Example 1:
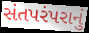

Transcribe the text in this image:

સંતપરંપરાનું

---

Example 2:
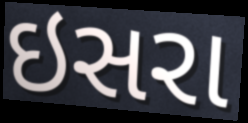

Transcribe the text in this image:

ઇસરા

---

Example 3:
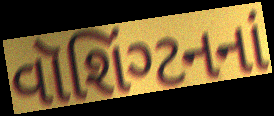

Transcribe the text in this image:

વૉશિંગ્ટનનાં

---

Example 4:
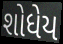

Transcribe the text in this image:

શોધેય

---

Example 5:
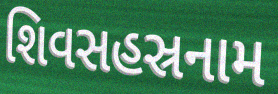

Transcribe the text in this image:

શિવસહસ્રનામ